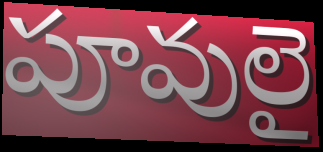
పూవులై